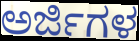
ಅರ್ಜಿಗಳ